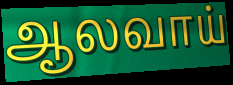
ஆலவாய்